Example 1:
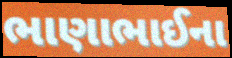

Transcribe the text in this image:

ભાણાભાઈના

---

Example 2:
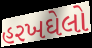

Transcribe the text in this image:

હરખઘેલો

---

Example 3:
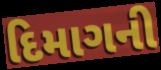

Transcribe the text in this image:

દિમાગની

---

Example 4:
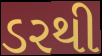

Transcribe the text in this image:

ડરથી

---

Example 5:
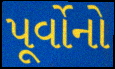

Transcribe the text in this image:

પૂર્વોનો